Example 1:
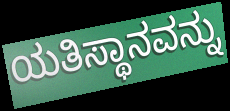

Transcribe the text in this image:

ಯತಿಸ್ಥಾನವನ್ನು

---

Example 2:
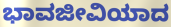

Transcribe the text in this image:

ಭಾವಜೀವಿಯಾದ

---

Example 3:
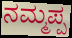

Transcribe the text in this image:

ನಮ್ಮಪ್ಪ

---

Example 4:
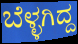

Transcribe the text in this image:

ಬೆಳ್ಳಗಿದ್ದ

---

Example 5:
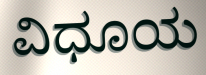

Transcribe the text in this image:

ವಿಧೂಯ